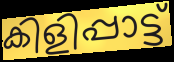
കിളിപ്പാട്ട്